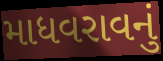
માધવરાવનું